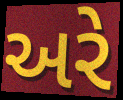
અરે